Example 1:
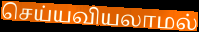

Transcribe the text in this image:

செய்யவியலாமல்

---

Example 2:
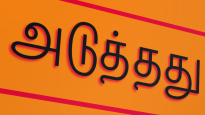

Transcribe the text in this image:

அடுத்தது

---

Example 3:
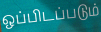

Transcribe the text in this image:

ஒப்பிடப்படும்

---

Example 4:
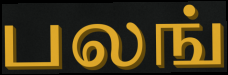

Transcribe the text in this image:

பலங்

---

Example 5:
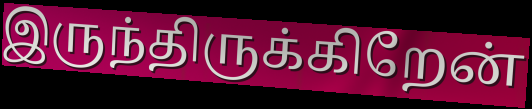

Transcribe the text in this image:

இருந்திருக்கிறேன்